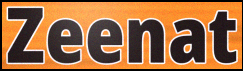
Zeenat